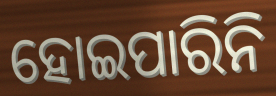
ହୋଇପାରିନି